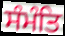
ਸੰਮੰਤਿ